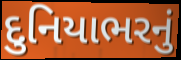
દુનિયાભરનું